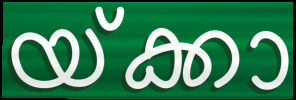
യ്‌ക്കാ